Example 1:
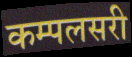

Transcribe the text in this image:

कम्पलसरी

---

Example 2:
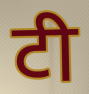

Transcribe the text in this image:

टी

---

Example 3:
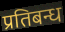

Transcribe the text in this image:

प्रतिबन्ध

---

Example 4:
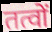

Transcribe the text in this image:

तत्वों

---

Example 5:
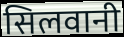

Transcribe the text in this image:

सिलवानी